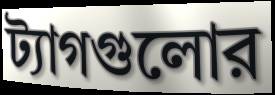
ট্যাগগুলোর